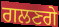
ਗਲਣਗੇ